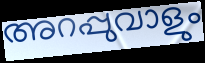
അറപ്പുവാളും